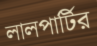
লালপার্টির